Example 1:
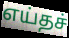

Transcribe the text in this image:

எய்தச்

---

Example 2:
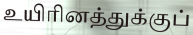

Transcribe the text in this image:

உயிரினத்துக்குப்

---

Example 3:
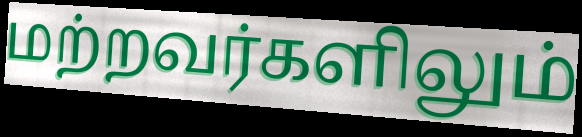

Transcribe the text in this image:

மற்றவர்களிலும்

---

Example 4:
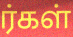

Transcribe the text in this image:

ர்கள்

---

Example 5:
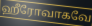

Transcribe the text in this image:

ஹீரோவாகவே